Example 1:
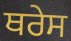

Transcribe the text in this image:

ਥਰੇਸ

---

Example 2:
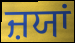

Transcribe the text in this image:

ਜ਼ਯਾਂ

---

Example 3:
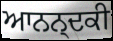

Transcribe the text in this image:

ਆਨਨ੍ਦਕੀ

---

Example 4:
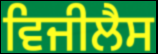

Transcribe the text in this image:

ਵਿਜੀਲੈਸ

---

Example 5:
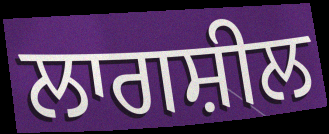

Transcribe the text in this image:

ਲਾਗਸ਼ੀਲ